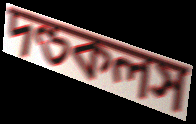
দন্ডকলস